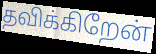
தவிக்கிறேன்